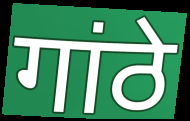
गांठे